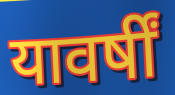
यावर्षीं